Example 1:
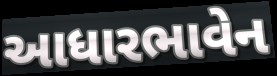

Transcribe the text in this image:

આધારભાવેન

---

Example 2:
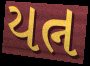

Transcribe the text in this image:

યત્ન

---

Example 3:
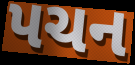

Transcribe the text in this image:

પચન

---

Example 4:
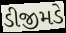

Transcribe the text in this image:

ડીજીમડે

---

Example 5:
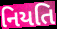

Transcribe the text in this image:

નિયતિ